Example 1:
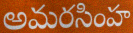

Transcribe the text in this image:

అమరసింహ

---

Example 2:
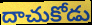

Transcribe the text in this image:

దాచుకోడు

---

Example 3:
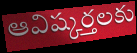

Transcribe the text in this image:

ఆవిష్కర్తలకు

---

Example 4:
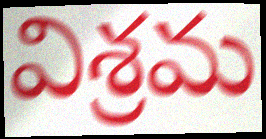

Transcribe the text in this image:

విశ్రమ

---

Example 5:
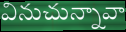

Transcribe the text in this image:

వినుచున్నావా